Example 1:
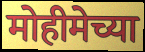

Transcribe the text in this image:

मोहीमेच्या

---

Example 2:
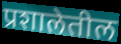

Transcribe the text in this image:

प्रशालेतील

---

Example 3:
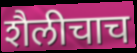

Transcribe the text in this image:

शैलीचाच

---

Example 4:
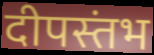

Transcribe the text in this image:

दीपस्तंभ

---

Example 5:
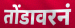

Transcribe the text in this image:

तोंडावरनं